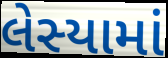
લેસ્યામાં